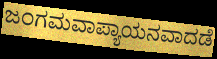
ಜಂಗಮವಾಪ್ಯಾಯನವಾದಡೆ